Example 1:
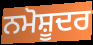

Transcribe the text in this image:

ਨਮੋਸ਼ੂਦਰ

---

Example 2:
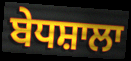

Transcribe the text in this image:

ਬੇਧਸ਼ਾਲਾ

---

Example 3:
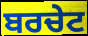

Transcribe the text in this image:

ਬਰਚੇਟ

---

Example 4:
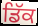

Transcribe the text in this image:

ਡਿੱਕ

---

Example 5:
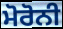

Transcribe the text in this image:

ਮੋਰੋਨੀ